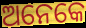
ଅନେକେ